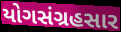
યોગસંગ્રહસાર